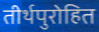
तीर्थपुरोहित